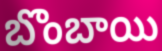
బొంబాయి